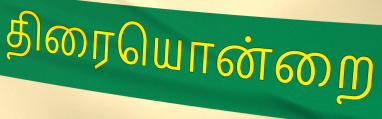
திரையொன்றை